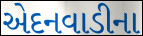
એદનવાડીના